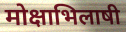
मोक्षाभिलाषी